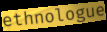
ethnologue